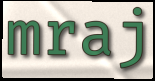
mraj